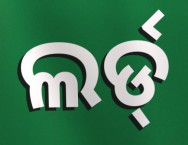
ଲର୍ଡ୍